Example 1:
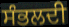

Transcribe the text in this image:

ਸੰਭਲਦੀ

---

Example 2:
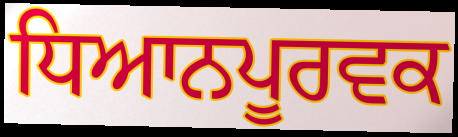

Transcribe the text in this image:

ਧਿਆਨਪੂਰਵਕ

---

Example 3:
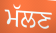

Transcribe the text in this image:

ਮੱਲਣ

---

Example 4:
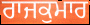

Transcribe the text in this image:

ਰਾਜਕੁਮਾਰ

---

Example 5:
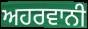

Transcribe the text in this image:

ਅਹਰਵਾਨੀ